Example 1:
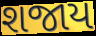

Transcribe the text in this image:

શજાય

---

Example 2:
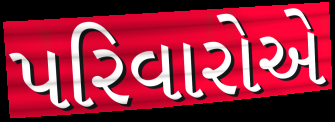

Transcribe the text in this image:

પરિવારોએ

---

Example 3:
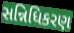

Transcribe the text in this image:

સન્નિધિકરણ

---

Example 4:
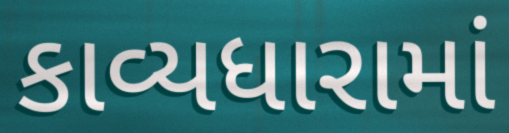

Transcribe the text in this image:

કાવ્યધારામાં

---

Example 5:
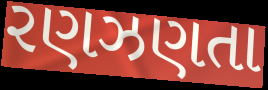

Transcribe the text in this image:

રણઝણતા